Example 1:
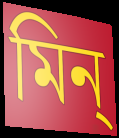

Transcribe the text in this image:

মিন্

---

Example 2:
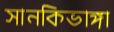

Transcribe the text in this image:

সানকিভাঙ্গা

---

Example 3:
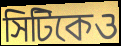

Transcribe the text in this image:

সিটিকেও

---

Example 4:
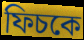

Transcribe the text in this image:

ফিচকে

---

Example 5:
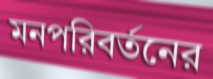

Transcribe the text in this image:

মনপরিবর্তনের